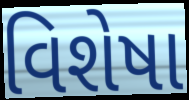
વિશેષા